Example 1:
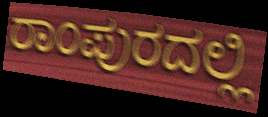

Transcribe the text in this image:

ರಾಂಪುರದಲ್ಲಿ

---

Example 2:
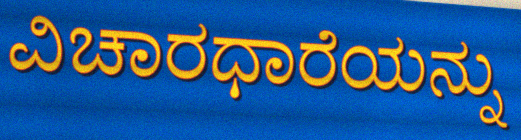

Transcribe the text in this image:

ವಿಚಾರಧಾರೆಯನ್ನು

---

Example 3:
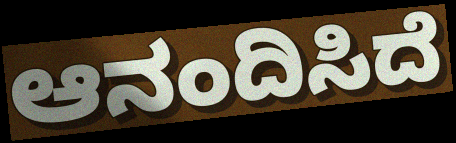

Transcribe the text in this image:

ಆನಂದಿಸಿದೆ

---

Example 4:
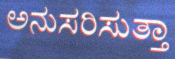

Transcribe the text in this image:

ಅನುಸರಿಸುತ್ತಾ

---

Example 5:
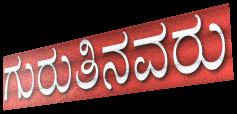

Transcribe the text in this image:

ಗುರುತಿನವರು